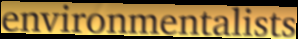
environmentalists